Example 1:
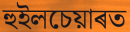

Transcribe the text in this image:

হুইলচেয়াৰত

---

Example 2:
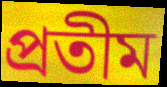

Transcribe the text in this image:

প্ৰতীম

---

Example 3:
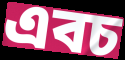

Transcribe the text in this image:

এবচ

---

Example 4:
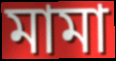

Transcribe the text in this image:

মামা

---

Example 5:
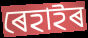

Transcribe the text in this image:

ৰেহাইৰ